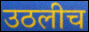
उठलीच